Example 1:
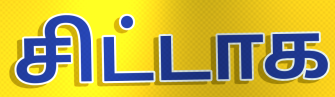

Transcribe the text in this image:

சிட்டாக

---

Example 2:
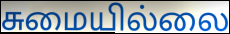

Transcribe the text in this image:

சுமையில்லை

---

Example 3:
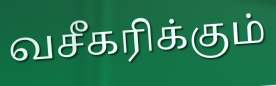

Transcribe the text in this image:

வசீகரிக்கும்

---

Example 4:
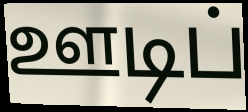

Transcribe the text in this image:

ஊடிப்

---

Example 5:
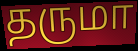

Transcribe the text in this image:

தருமா